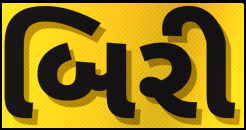
બિરી